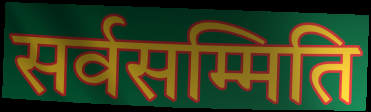
सर्वसम्मिति